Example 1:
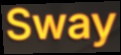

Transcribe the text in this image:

Sway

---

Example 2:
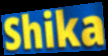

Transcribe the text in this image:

Shika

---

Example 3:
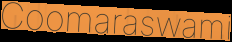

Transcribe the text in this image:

Coomaraswami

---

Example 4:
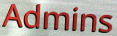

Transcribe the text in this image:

Admins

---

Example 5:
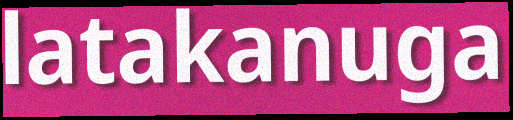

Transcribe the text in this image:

latakanuga